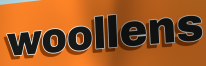
woollens